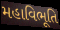
મહાવિભૂતિ